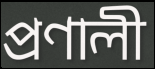
প্রণালী